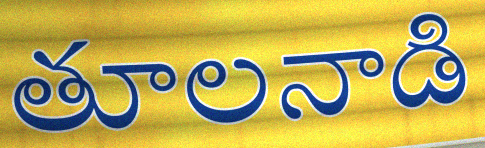
తూలనాడి